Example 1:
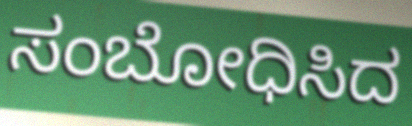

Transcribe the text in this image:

ಸಂಬೋಧಿಸಿದ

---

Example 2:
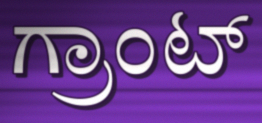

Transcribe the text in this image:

ಗ್ರಾಂಟ್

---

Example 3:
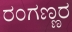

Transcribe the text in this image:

ರಂಗಣ್ಣರ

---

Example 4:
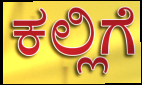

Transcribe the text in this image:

ಕಲ್ಲಿಗೆ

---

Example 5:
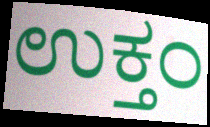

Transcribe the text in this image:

ಉಕ್ತಂ